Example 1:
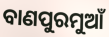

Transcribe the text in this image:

ବାଣପୁରମୁଆଁ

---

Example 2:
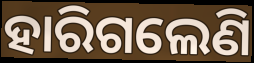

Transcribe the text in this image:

ହାରିଗଲେଣି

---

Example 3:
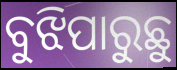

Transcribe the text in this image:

ବୁଝିପାରୁଛୁ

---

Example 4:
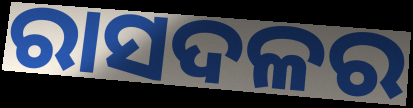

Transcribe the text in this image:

ରାସଦଳର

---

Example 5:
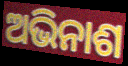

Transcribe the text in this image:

ଅଭିନାଶ